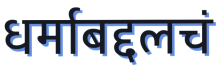
धर्माबद्दलचं